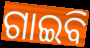
ଗାଇବି